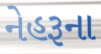
નેહરૂના